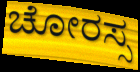
ಚೋರಸ್ಸ